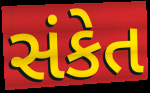
સંકેત